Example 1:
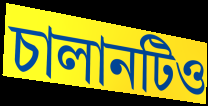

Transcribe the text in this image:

চালানটিও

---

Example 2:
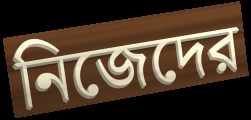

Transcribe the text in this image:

নিজেদের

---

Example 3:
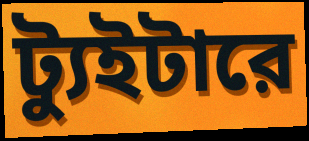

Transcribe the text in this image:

ট্যুইটারে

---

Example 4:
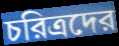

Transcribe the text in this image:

চরিত্রদের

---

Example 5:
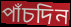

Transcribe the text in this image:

পাঁচদিন